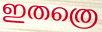
ഇതത്രെ